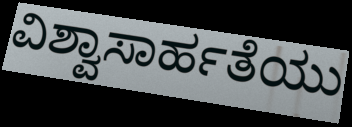
ವಿಶ್ವಾಸಾರ್ಹತೆಯು